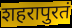
शहरापुरतं